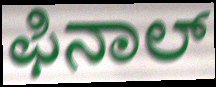
ಫಿನಾಲ್